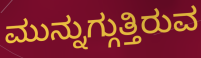
ಮುನ್ನುಗ್ಗುತ್ತಿರುವ